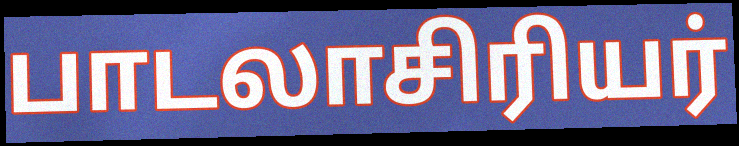
பாடலாசிரியர்